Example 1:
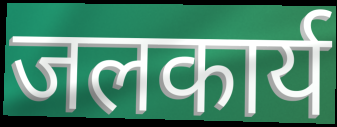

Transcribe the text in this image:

जलकार्य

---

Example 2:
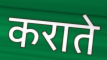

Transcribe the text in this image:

कराते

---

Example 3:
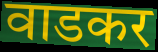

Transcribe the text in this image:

वाडकर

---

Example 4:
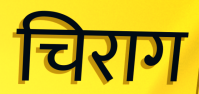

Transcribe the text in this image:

चिराग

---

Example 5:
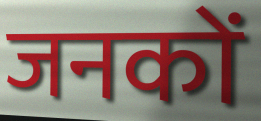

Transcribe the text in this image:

जनकों